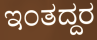
ಇಂತದ್ದರ